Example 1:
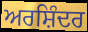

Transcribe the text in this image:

ਅਰਸ਼ਿੰਦਰ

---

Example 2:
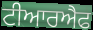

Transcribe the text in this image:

ਟੀਆਰਐਫ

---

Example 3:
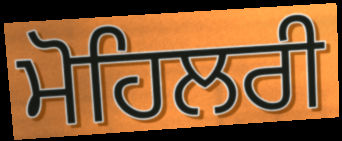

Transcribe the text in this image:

ਮੋਹਿਲਰੀ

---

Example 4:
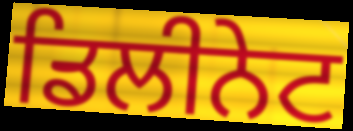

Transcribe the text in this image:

ਡਿਲੀਨੇਟ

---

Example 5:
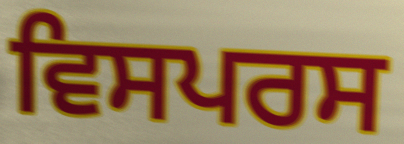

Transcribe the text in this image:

ਵਿਸਪਰਸ